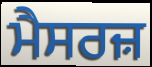
ਮੈਸਰਜ਼